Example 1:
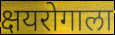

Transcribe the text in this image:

क्षयरोगाला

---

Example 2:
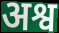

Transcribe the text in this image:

अश्व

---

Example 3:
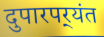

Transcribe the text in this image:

दुपारपर्यंत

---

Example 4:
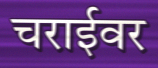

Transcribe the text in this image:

चराईवर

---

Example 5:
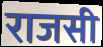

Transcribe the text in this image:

राजसी